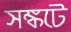
সঙ্কটে